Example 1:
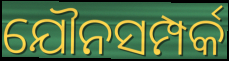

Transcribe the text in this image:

ଯୌନସମ୍ପର୍କ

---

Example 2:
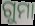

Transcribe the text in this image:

ଗୁମା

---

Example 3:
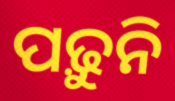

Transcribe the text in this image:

ପଢ଼ୁନି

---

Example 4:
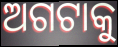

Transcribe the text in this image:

ଅଗଟାକୁ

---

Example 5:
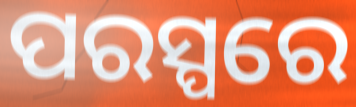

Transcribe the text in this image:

ପରସ୍ପରେ